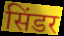
सिंडर